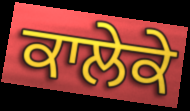
ਕਾਲੇਕੇ